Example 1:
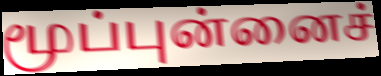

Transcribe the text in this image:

மூப்புன்னைச்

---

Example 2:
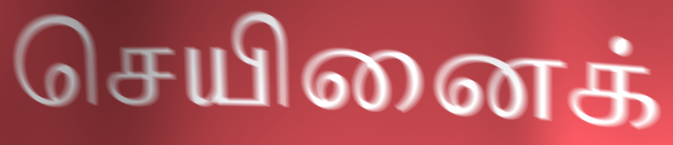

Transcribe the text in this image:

செயினைக்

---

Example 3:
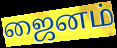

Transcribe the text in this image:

ஜைனம்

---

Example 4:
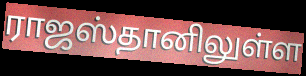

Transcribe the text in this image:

ராஜஸ்தானிலுள்ள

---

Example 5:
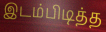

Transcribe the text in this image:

இடம்பிடித்த